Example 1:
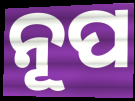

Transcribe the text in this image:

ନୂପ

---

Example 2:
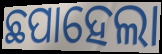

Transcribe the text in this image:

ଛପାହେଲା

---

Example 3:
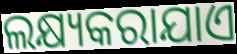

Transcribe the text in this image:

ଲକ୍ଷ୍ୟକରାଯାଏ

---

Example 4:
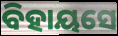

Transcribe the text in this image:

ବିହାୟସେ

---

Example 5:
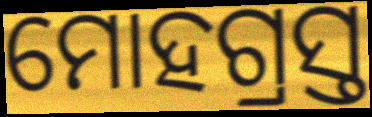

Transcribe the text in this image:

ମୋହଗ୍ରସ୍ତ